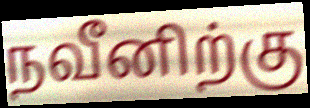
நவீனிற்கு